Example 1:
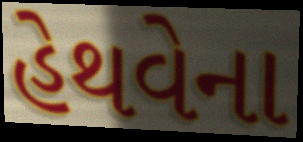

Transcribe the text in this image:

હેથવેના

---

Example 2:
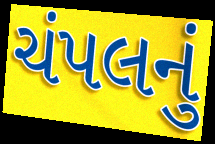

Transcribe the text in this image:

ચંપલનું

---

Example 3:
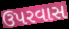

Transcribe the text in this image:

ઉપરવાસ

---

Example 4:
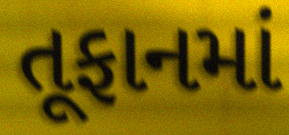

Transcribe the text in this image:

તૂફાનમાં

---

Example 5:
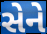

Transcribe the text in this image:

સેને